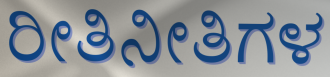
ರೀತಿನೀತಿಗಳ